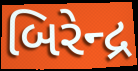
બિરેન્દ્ર